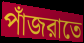
পাঁজরাতে